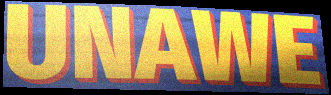
UNAWE